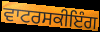
ਵਾਟਰਸਕੀਇੰਗ